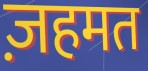
ज़हमत